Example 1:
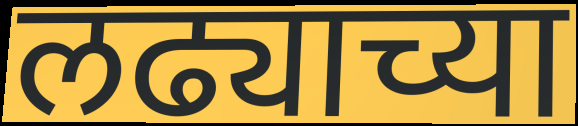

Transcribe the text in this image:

लढ्याच्या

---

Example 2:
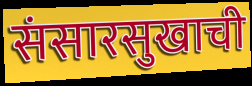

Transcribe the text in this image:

संसारसुखाची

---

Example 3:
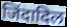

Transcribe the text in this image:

जिंदादिल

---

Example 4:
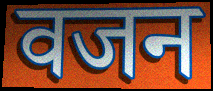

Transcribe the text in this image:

वजन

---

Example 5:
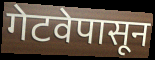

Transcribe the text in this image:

गेटवेपासून